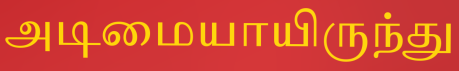
அடிமையாயிருந்து